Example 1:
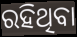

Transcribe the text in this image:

ରହିଥିବା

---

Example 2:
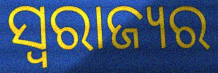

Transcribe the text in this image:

ସ୍ୱରାଜ୍ୟର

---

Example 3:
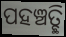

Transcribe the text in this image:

ପହଞ୍ଚତ୍ଛି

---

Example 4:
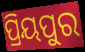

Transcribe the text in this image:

ପ୍ରିୟପୁର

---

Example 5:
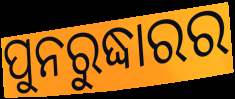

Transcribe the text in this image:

ପୁନରୁଦ୍ଧାରର